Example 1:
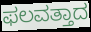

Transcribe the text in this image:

ಫಲವತ್ತಾದ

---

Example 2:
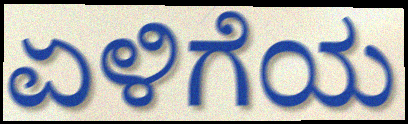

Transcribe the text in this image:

ಏಳಿಗೆಯ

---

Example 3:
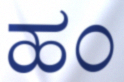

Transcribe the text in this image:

ಹಂ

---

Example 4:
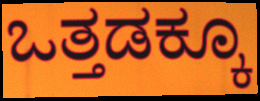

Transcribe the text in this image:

ಒತ್ತಡಕ್ಕೂ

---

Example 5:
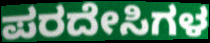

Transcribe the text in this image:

ಪರದೇಸಿಗಳ